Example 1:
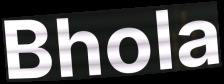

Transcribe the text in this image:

Bhola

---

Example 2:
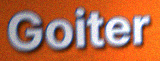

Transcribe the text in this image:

Goiter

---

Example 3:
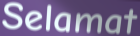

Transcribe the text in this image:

Selamat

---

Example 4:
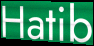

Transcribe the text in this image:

Hatib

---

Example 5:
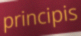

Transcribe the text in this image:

principis